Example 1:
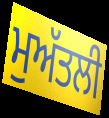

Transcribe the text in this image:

ਮੁਅੱਤਲੀ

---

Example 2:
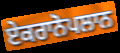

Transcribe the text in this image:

ਏਕਰਾਨੋਪਲਾਨ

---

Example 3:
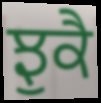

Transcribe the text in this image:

ਝੁਕੈ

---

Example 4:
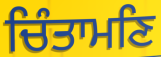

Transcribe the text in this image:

ਚਿੰਤਾਮਣਿ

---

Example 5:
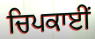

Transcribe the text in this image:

ਚਿਪਕਾਈਂ